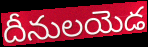
దీనులయెడ